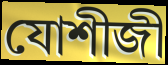
যোশীজী